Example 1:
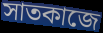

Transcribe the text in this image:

সাতকাজে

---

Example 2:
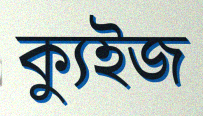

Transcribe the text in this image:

ক্যুইজ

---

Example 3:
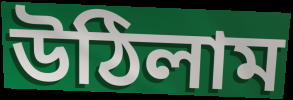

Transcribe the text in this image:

উঠিলাম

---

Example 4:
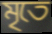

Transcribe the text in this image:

মৃতে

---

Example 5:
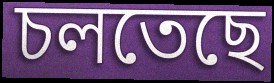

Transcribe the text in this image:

চলতেছে